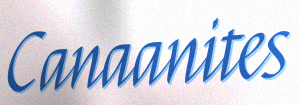
Canaanites